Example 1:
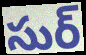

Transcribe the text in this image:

సుర్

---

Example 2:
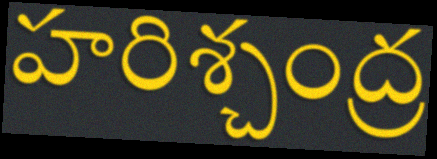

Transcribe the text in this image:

హరిశ్చంద్ర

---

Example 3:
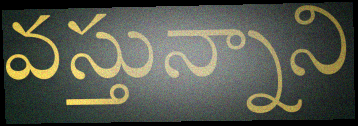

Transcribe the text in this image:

వస్తున్నాని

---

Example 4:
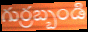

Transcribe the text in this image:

గుర్రబ్బండి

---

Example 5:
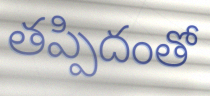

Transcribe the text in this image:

తప్పిదంతో